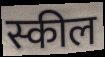
स्‍कील